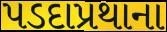
પડદાપ્રથાના